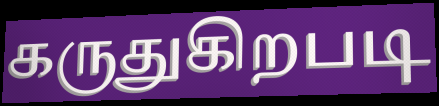
கருதுகிறபடி